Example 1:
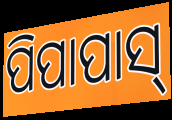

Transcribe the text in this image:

ପିପାପାସ୍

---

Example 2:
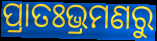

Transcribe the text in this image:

ପ୍ରାତଃଭ୍ରମଣରୁ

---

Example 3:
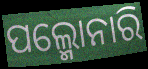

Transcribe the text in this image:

ପଲ୍ମୋନାରି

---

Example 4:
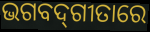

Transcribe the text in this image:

ଭଗବଦ୍‌ଗୀତାରେ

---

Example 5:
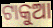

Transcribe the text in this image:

ଟାକୁଆ